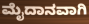
ಮೈದಾನವಾಗಿ